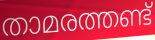
താമരത്തണ്ട്